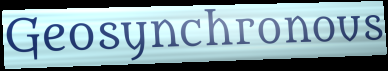
Geosynchronous